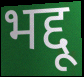
भद्दू